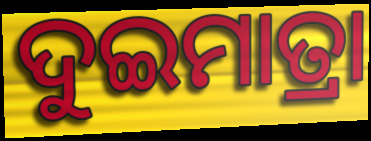
ଦୁଇମାତ୍ରା